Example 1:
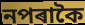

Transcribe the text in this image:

নপৰাকৈ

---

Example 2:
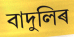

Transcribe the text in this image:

বাদুলিৰ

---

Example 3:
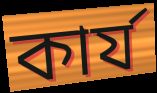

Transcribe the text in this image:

কাৰ্য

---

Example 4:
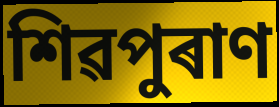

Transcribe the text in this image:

শিৱপুৰাণ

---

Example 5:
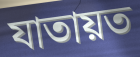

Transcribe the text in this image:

যাতায়ত